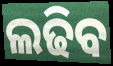
ଲଢିବ